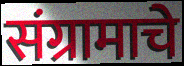
संग्रामाचे